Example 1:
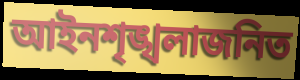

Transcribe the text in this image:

আইনশৃঙ্খলাজনিত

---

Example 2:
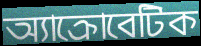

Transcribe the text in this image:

অ্যাক্রোবেটিক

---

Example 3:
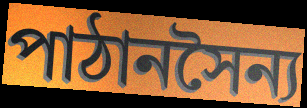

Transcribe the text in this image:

পাঠানসৈন্য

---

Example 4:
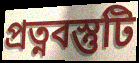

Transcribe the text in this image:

প্রত্নবস্তুটি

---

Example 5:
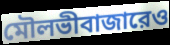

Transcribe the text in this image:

মৌলভীবাজারেও